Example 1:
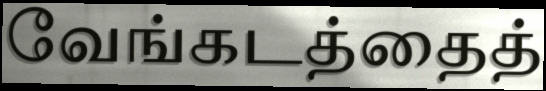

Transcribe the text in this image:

வேங்கடத்தைத்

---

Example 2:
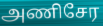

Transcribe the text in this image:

அணிசேர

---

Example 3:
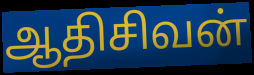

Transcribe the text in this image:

ஆதிசிவன்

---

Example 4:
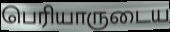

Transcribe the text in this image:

பெரியாருடைய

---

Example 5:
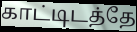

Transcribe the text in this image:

காட்டிடத்தே